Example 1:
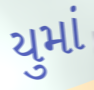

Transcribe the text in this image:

યુમાં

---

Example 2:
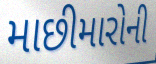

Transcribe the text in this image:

માછીમારોની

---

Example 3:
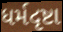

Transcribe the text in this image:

ધર્મદૃષ્ટા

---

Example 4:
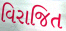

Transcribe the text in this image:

વિરાજિત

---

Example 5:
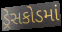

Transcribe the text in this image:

ડ્રેસકોડમાં